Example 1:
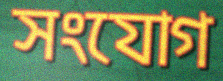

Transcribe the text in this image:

সংযোগ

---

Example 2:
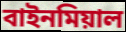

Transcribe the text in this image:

বাইনমিয়াল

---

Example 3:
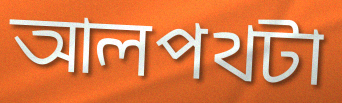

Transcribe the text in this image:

আলপথটা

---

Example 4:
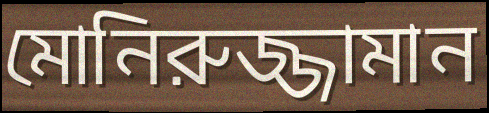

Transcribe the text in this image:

মোনিরুজ্জামান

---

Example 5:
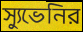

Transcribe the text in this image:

স্যুভেনির